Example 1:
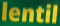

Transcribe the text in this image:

lentil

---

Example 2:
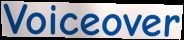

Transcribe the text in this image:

Voiceover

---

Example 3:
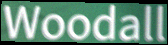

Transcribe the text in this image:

Woodall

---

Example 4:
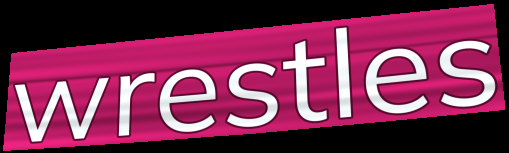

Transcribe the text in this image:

wrestles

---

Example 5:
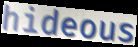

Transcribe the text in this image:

hideous